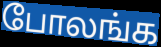
போலங்க